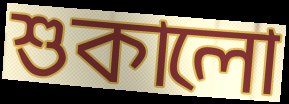
শুকালো